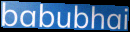
babubhai